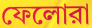
ফেলোরা